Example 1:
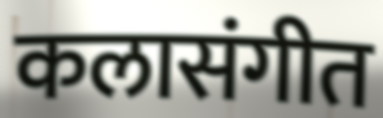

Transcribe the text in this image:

कलासंगीत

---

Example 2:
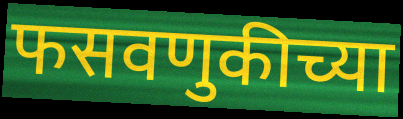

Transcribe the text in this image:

फसवणुकीच्या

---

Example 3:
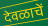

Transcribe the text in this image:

देवळाचें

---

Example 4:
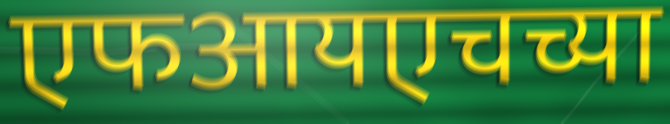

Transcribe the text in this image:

एफआयएचच्या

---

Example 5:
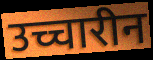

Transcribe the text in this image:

उच्चारीन